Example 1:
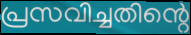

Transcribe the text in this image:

പ്രസവിച്ചതിന്റെ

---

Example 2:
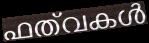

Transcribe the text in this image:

ഫത്‌വകൾ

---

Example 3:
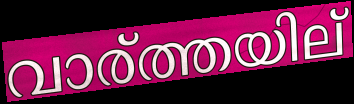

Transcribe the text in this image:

വാര്ത്തയില്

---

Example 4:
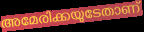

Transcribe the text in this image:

അമേരിക്കയുടേതാണ്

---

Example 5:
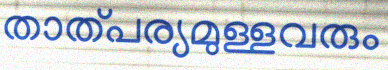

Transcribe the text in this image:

താത്പര്യമുള്ളവരും